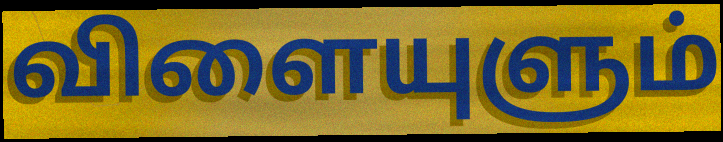
விளையுளும்